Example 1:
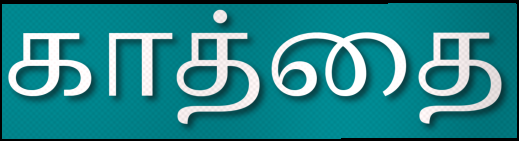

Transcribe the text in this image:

காத்தை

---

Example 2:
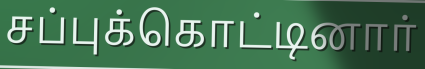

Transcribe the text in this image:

சப்புக்கொட்டினார்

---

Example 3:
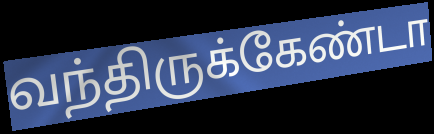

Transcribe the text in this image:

வந்திருக்கேண்டா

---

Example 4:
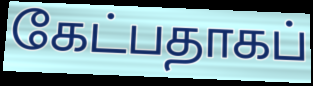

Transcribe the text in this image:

கேட்பதாகப்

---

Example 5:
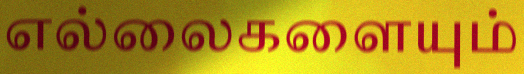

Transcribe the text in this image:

எல்லைகளையும்